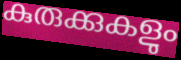
കുരുക്കുകളും